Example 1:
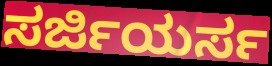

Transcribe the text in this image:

ಸರ್ಜಿಯರ್ಸ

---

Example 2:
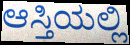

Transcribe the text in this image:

ಆಸ್ತಿಯಲ್ಲಿ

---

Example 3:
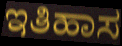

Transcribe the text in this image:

ಇತಿಹಾಸ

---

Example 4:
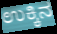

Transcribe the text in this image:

ಉಕ್ಕಿನ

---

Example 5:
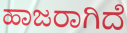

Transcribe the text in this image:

ಹಾಜರಾಗಿದೆ